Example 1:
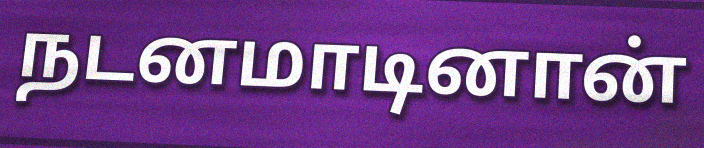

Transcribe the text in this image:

நடனமாடினான்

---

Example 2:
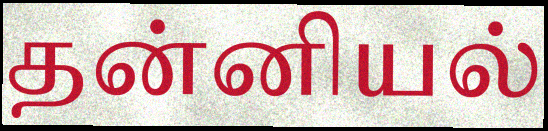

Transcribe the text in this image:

தன்னியல்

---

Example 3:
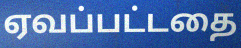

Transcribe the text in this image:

ஏவப்பட்டதை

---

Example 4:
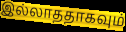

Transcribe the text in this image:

இல்லாததாகவும்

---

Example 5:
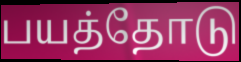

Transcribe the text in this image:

பயத்தோடு